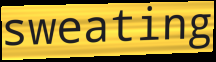
sweating